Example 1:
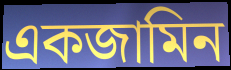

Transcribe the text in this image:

একজামিন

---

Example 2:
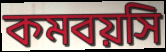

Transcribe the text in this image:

কমবয়সি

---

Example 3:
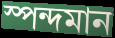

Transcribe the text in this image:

স্পন্দমান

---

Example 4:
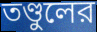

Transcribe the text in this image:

তণ্ডুলের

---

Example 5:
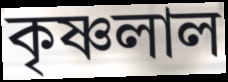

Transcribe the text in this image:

কৃষ্ণলাল